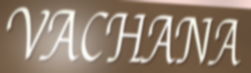
VACHANA